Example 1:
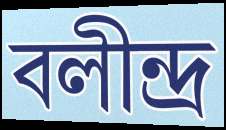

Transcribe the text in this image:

বলীন্দ্ৰ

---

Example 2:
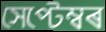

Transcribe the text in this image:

সেপ্টেম্বৰ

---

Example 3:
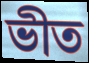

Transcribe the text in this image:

ভীত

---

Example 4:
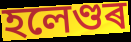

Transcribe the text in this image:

হলেণ্ডৰ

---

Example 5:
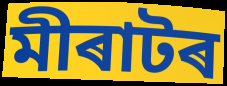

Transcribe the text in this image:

মীৰাটৰ